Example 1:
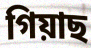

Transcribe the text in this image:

গিয়াছ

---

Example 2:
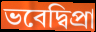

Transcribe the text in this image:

ভবেদ্বিপ্রা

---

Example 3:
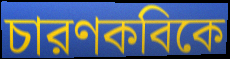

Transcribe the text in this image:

চারণকবিকে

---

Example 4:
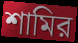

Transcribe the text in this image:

শামির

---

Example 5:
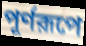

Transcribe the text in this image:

পূর্ণরূপে